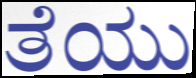
ತೆಯು